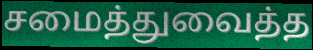
சமைத்துவைத்த